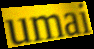
umai